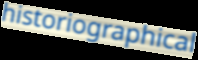
historiographical